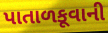
પાતાળકૂવાની